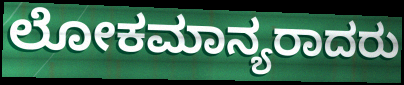
ಲೋಕಮಾನ್ಯರಾದರು